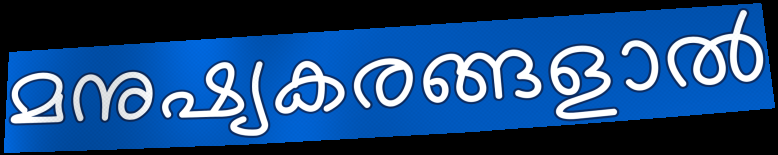
മനുഷ്യകരങ്ങളാൽ